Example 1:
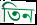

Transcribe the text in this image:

তিন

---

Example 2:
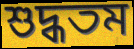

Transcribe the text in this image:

শুদ্ধতম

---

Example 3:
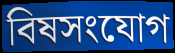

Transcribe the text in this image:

বিষসংযোগ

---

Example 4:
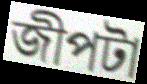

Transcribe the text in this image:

জীপটা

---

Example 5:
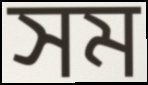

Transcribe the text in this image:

সম